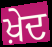
ਖ਼ੇਦ